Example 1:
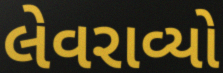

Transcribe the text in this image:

લેવરાવ્યો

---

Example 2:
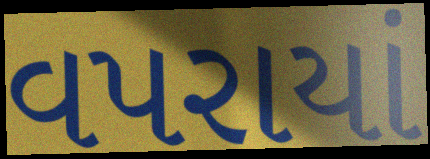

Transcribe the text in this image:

વપરાયાં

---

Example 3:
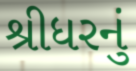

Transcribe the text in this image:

શ્રીધરનું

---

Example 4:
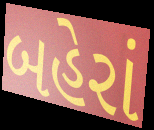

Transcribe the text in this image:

બહેરાં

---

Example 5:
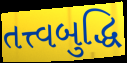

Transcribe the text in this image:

તત્ત્વબુદ્ધિ